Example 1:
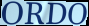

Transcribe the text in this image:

ORDO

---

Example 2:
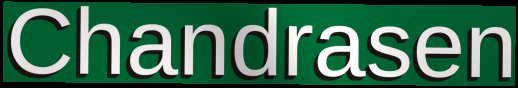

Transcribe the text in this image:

Chandrasen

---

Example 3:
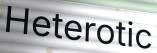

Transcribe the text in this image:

Heterotic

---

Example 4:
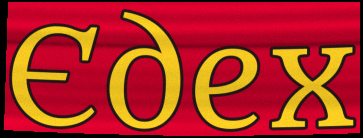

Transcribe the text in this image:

Edex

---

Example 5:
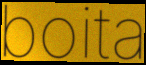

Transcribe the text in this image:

boita